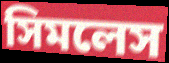
সিমলেস